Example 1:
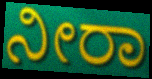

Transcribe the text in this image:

ನೀರಾ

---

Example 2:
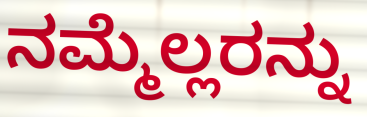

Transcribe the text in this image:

ನಮ್ಮೆಲ್ಲರನ್ನು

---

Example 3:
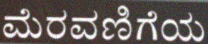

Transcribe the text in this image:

ಮೆರವಣಿಗೆಯ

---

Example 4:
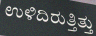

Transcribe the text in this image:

ಉಳಿದಿರುತ್ತಿತ್ತು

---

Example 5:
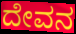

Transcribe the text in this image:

ದೇವನ